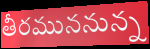
తీరముననున్న